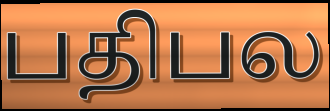
பதிபல